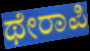
ಥೇರಾಪಿ